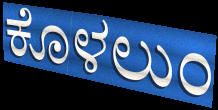
ಕೊಳಲುಂ